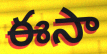
ఈసా